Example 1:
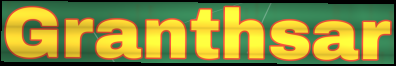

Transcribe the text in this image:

Granthsar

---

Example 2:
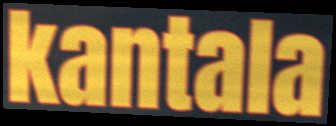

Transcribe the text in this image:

kantala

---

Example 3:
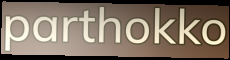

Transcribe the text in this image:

parthokko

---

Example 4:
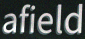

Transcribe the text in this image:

afield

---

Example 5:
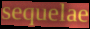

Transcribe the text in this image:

sequelae